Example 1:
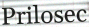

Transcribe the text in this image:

Prilosec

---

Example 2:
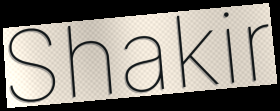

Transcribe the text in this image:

Shakir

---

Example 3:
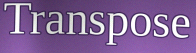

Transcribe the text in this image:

Transpose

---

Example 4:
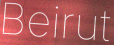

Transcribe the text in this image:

Beirut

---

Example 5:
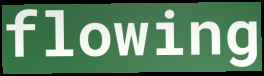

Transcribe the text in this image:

flowing